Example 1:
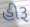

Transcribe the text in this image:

હીરૂ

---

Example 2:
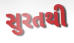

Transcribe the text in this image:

સુરતથી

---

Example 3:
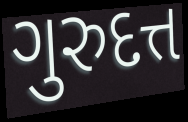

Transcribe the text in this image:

ગુરુદત્ત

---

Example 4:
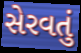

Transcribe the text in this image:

સેરવતું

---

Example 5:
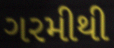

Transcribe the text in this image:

ગરમીથી